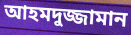
আহমদুজ্জামান